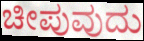
ಚೀಪುವುದು